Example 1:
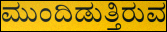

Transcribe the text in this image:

ಮುಂದಿಡುತ್ತಿರುವ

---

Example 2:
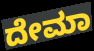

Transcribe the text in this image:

ದೇಮಾ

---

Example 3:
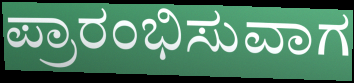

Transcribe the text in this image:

ಪ್ರಾರಂಭಿಸುವಾಗ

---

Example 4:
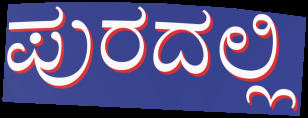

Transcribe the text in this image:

ಪುರದಲ್ಲಿ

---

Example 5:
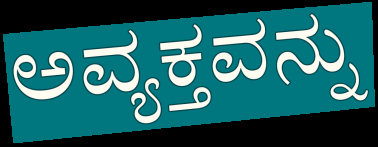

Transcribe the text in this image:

ಅವ್ಯಕ್ತವನ್ನು